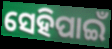
ସେହିପାଇଁ